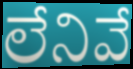
లేనివే